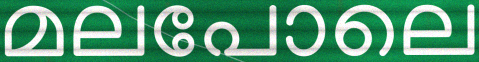
മലപോലെ